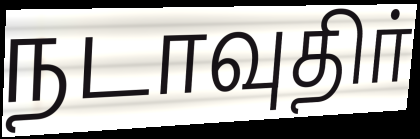
நடாவுதிர்